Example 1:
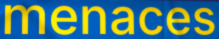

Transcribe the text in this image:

menaces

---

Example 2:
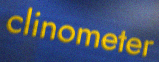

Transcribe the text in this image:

clinometer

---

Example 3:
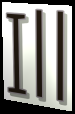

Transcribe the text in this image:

Ill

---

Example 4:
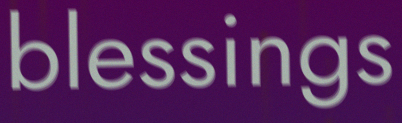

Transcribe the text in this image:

blessings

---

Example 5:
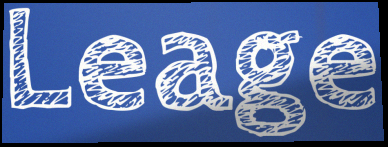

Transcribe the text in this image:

Leage